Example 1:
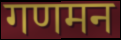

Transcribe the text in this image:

गणमन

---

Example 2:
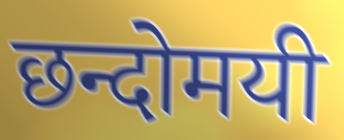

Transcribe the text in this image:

छन्दोमयी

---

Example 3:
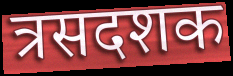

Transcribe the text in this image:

त्रसदशक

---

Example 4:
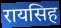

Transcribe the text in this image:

रायसिह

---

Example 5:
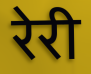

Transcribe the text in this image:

रेरी